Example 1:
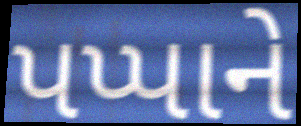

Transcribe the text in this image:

પપ્પાને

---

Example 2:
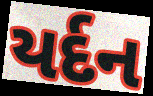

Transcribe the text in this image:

યર્દન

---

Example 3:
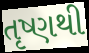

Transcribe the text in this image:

તૃષ્ણથી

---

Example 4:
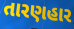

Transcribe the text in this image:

તારણહાર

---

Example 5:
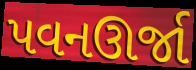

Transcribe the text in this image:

પવનઊર્જા